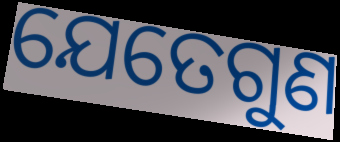
ଯେତେଗୁଣ